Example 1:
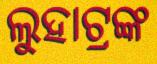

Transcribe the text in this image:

ଲୁହାଟ୍ରଙ୍କ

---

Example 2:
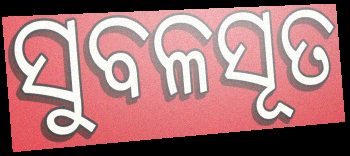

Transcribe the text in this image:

ସୁବଳସୂତ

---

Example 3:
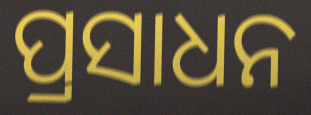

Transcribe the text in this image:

ପ୍ରସାଧନ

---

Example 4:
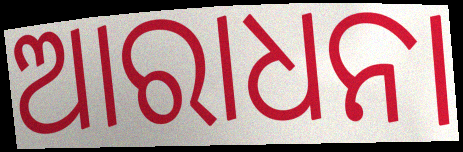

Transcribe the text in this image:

ଆରାଧନା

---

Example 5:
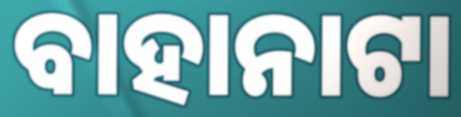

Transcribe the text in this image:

ବାହାନାଟା